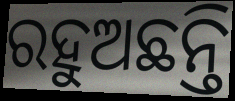
ରହୁଅଛନ୍ତି